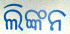
ଲିଙ୍କନ